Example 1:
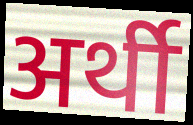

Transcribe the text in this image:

अर्थी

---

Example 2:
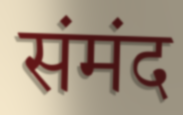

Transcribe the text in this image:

संमंद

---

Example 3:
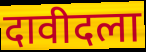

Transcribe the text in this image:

दावीदला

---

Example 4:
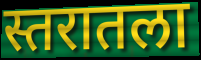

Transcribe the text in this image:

स्तरातला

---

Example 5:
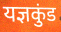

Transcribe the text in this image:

यज्ञकुंड